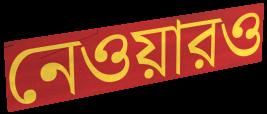
নেওয়ারও